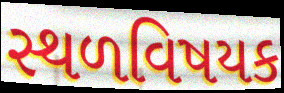
સ્થળવિષયક